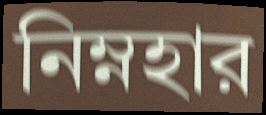
নিম্নহার